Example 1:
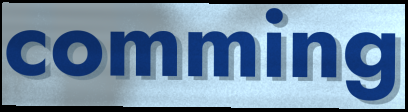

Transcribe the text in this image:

comming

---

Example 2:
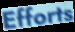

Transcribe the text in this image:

Efforts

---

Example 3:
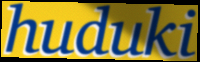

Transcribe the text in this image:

huduki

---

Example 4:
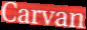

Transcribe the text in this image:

Carvan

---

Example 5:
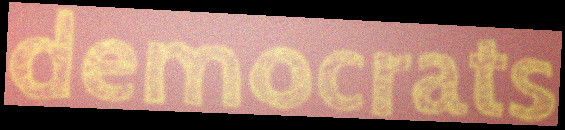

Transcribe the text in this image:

democrats